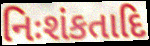
નિઃશંકતાદિ